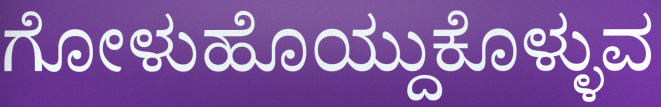
ಗೋಳುಹೊಯ್ದುಕೊಳ್ಳುವ